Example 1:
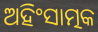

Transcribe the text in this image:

ଅହିଂସାତ୍ମକ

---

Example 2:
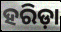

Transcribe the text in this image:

ହରିଡ଼ା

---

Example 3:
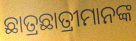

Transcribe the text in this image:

ଛାତ୍ରଛାତ୍ରୀମାନଙ୍କ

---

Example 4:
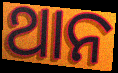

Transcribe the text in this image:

ଥାନ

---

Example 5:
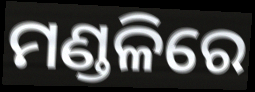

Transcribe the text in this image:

ମଣ୍ଡଳିରେ